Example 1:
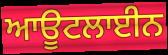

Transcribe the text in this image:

ਆਊਟਲਾਈਨ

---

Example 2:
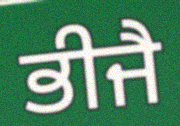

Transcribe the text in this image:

ਭੀਜੈ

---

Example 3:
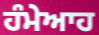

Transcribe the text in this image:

ਹੰਮੇਆਹ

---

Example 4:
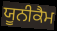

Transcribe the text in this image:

ਯੂਨੀਕੈਮ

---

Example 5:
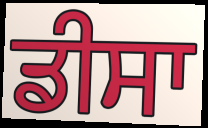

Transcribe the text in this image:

ਡੀਸਾ